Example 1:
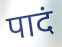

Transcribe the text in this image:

पादं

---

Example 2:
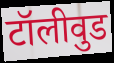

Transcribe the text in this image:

टॉलीवुड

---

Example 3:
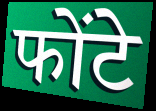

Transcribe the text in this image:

फोंटे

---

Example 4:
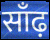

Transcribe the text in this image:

साँढ़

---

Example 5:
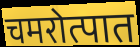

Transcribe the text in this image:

चमरोत्पात